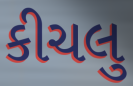
કીચલુ